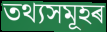
তথ্যসমূহৰ